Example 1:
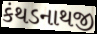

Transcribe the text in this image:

કંથડનાથજી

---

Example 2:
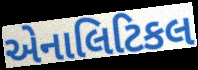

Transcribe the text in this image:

એનાલિટિકલ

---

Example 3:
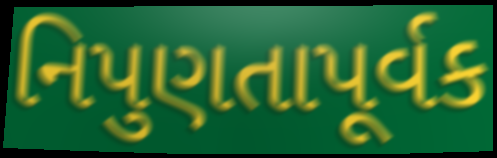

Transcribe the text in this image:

નિપુણતાપૂર્વક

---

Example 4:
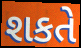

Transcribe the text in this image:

શકતે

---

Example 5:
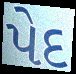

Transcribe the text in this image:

પેદ